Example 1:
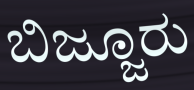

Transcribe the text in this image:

ಬಿಜ್ಜೂರು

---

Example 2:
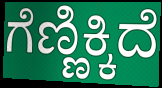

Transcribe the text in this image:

ಗೆಣ್ಣಿಕ್ಕಿದೆ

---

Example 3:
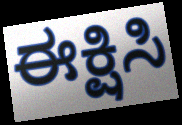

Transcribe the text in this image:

ಈಕ್ಷಿಸಿ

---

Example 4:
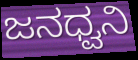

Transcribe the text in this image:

ಜನಧ್ವನಿ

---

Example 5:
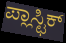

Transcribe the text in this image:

ಪ್ಲಾಸ್ಟಿಕ್